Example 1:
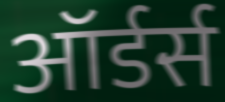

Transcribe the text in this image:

ऑर्डर्स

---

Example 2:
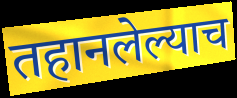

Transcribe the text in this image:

तहानलेल्याच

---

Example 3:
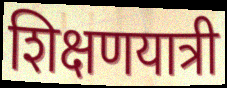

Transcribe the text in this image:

शिक्षणयात्री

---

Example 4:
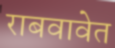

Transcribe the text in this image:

राबवावेत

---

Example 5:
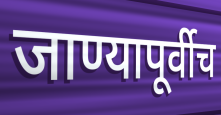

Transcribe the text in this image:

जाण्यापूर्वीच